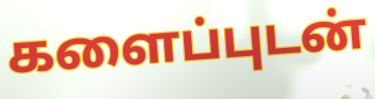
களைப்புடன்